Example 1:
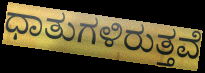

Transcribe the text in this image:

ಧಾತುಗಳಿರುತ್ತವೆ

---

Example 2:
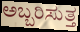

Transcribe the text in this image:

ಅಬ್ಬರಿಸುತ್ತ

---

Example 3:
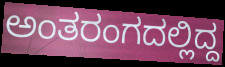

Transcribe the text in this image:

ಅಂತರಂಗದಲ್ಲಿದ್ದ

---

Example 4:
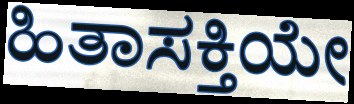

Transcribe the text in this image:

ಹಿತಾಸಕ್ತಿಯೇ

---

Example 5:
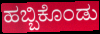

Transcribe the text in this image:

ಹಬ್ಬಿಕೊಂಡು